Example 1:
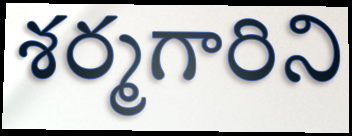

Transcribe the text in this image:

శర్మగారిని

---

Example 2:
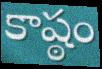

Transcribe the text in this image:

కాష్ఠం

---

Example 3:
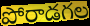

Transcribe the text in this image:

పోరాడగల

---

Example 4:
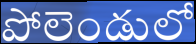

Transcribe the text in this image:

పోలెండులో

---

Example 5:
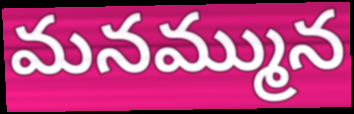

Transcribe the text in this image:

మనమ్మున